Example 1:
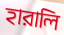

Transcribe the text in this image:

হারালি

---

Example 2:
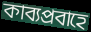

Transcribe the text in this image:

কাব্যপ্রবাহে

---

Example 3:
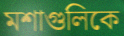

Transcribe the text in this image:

মশাগুলিকে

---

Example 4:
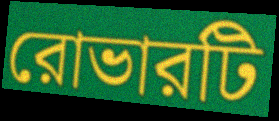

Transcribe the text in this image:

রোভারটি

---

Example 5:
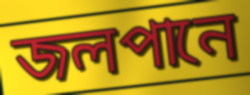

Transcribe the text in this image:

জলপানে